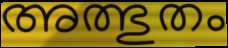
അത്ഭുതം